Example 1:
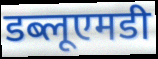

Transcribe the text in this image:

डब्लूएमडी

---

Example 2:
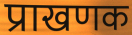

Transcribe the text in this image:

प्राखणक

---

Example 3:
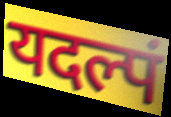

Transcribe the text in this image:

यदल्पं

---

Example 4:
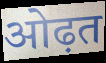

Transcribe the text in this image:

ओढ़त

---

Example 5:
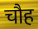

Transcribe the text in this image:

चौह